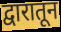
द्वारातून